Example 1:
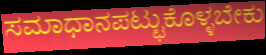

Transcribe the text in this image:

ಸಮಾಧಾನಪಟ್ಟುಕೊಳ್ಳಬೇಕು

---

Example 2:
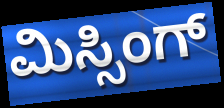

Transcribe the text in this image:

ಮಿಸ್ಸಿಂಗ್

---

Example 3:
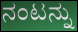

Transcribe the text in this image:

ನಂಟನ್ನು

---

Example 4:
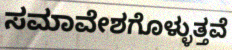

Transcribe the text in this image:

ಸಮಾವೇಶಗೊಳ್ಳುತ್ತವೆ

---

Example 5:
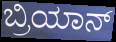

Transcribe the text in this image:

ಬ್ರಿಯಾನ್